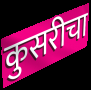
कुसरीचा